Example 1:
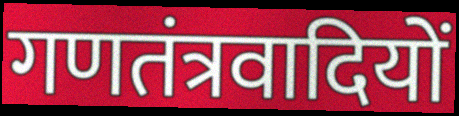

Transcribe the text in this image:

गणतंत्रवादियों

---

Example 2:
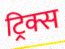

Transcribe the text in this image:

ट्रिक्स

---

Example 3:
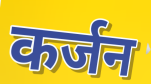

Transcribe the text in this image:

कर्जन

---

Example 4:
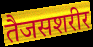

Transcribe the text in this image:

तैजसशरीर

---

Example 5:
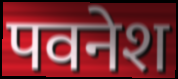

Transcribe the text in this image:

पवनेश